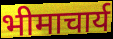
भीमाचार्य